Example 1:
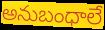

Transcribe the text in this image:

అనుబంధాలే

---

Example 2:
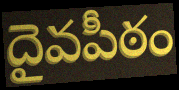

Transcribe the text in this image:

దైవపీఠం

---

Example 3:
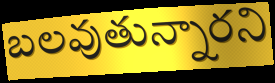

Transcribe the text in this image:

బలవుతున్నారని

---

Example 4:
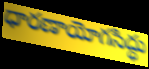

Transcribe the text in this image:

ధారణాయోగసిద్ధు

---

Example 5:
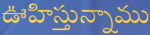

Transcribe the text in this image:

ఊహిస్తున్నాము